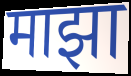
माझा